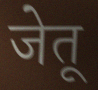
जेतू